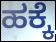
ಹಕ್ಕೆ